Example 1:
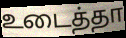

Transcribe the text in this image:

உடைத்தா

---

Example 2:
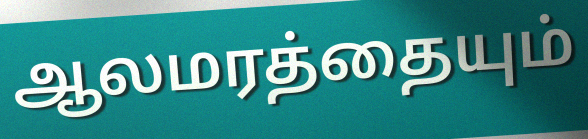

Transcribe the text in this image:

ஆலமரத்தையும்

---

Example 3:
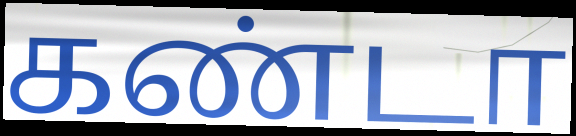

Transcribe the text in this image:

கண்டா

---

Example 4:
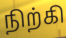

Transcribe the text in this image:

நிற்கி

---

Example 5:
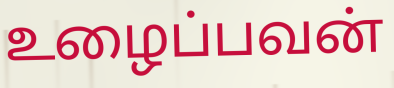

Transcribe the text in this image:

உழைப்பவன்